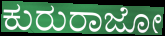
ಕುರುರಾಜೋ